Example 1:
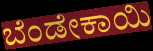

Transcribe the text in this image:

ಬೆಂಡೇಕಾಯಿ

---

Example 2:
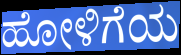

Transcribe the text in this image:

ಹೋಳಿಗೆಯ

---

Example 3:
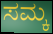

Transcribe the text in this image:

ಸಮ್ಕ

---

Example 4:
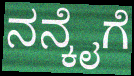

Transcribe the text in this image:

ನನ್ಕೈಗೆ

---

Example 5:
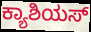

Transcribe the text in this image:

ಕ್ಯಾಶಿಯಸ್